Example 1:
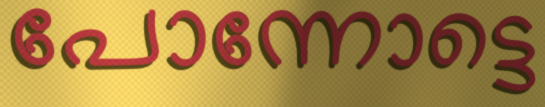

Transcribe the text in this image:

പോന്നോട്ടെ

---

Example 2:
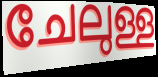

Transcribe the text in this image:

ചേലുള്ള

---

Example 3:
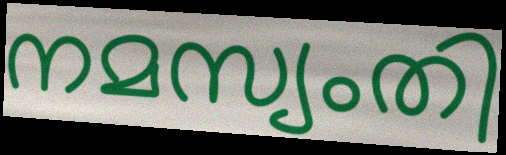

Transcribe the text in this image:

നമസ്യംതി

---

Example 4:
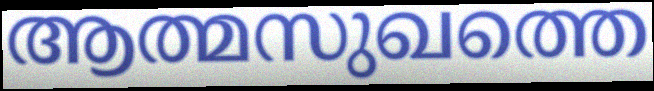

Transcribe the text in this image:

ആത്മസുഖത്തെ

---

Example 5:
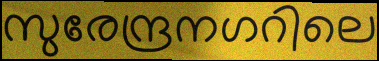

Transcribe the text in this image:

സുരേന്ദ്രനഗറിലെ